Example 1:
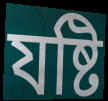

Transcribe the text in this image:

যষ্টি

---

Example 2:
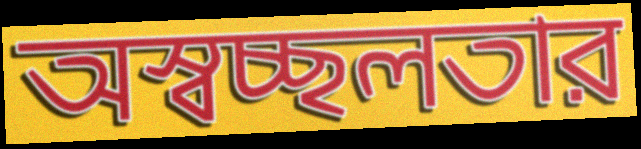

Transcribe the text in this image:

অস্বচ্ছলতার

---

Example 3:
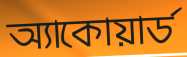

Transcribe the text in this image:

অ্যাকোয়ার্ড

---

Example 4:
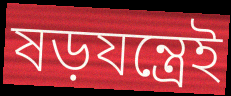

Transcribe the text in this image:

ষড়যন্ত্রেই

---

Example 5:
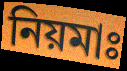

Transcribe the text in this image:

নিয়মাঃ